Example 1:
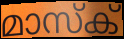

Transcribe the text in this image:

മാസ്ക്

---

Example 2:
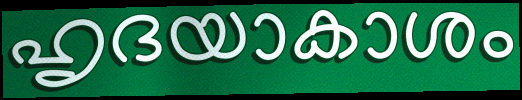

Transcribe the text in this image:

ഹൃദയാകാശം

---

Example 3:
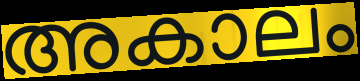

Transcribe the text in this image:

അകാലം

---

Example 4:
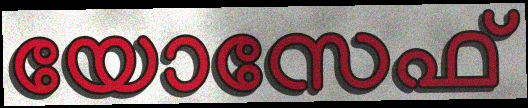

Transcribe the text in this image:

യോസേഫ്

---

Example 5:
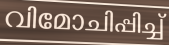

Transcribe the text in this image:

വിമോചിപ്പിച്ച്